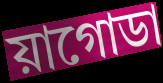
য়াগোডা